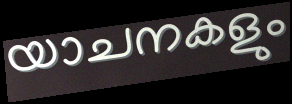
യാചനകളും